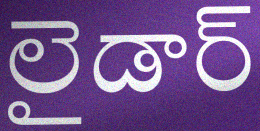
లైడార్